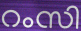
റംസി